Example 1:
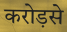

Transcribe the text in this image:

करोड़से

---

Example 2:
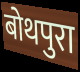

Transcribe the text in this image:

बोथपुरा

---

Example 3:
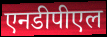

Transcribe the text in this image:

एनडीपीएल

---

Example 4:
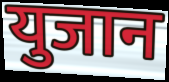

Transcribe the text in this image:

युजान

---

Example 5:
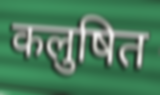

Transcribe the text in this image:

कलुषित